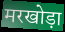
मरखोड़ा